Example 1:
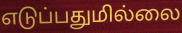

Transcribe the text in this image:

எடுப்பதுமில்லை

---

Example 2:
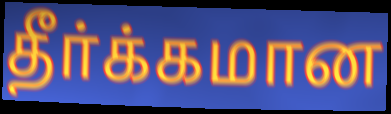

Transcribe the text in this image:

தீர்க்கமான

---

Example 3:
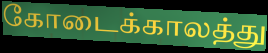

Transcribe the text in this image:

கோடைக்காலத்து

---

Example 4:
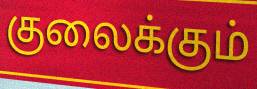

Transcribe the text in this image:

குலைக்கும்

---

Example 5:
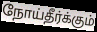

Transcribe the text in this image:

நோய்தீர்க்கும்